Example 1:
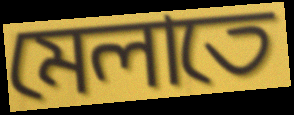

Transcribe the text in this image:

মেলাতে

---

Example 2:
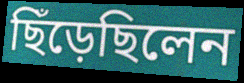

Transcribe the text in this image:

ছিঁড়েছিলেন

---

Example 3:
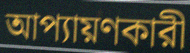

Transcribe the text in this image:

আপ্যায়ণকারী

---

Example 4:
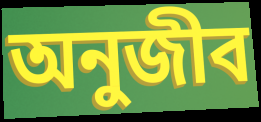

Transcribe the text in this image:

অনুজীব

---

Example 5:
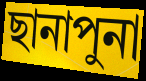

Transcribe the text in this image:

ছানাপুনা